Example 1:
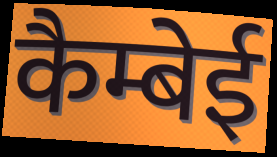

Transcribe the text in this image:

कैम्बेई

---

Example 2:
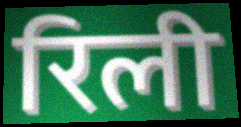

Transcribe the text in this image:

रिली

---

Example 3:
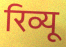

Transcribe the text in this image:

रिव्यू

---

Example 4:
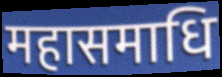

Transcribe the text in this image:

महासमाधि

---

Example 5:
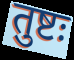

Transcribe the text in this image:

तुष्टः